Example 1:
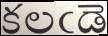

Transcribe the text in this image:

కలఁడె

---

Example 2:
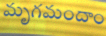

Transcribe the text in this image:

మృగమందాం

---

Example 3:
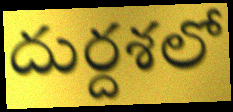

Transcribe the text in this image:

దుర్దశలో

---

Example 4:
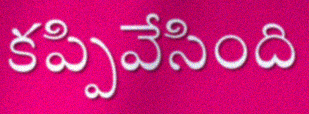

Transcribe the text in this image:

కప్పివేసింది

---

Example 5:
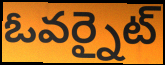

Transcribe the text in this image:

ఓవర్నైట్